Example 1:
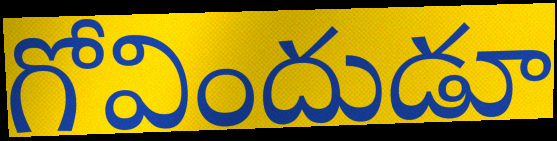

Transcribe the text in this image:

గోవిందుడూ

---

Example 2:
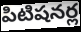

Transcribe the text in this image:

పిటిషనర్ల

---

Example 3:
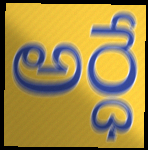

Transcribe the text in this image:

అర్ధే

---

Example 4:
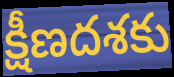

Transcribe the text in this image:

క్షీణదశకు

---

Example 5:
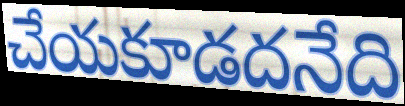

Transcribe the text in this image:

చేయకూడదనేది